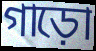
গাড়ো